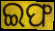
ଇଫ